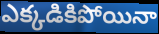
ఎక్కడికిపోయినా